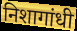
निशागांधी